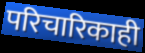
परिचारिकाही